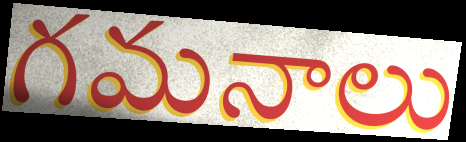
గమనాలు